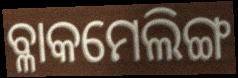
ବ୍ଳାକମେଲିଙ୍ଗ